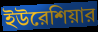
ইউরেশিয়ার